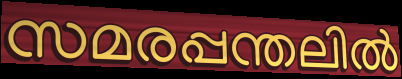
സമരപ്പന്തലിൽ